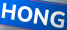
HONG